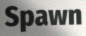
Spawn